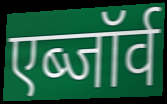
एब्जॉर्व